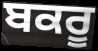
ਬਕਰੂ